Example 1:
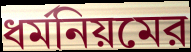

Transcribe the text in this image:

ধর্মনিয়মের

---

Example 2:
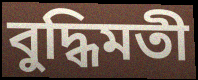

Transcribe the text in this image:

বুদ্ধিমতী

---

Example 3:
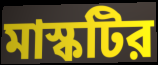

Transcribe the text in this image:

মাস্কটির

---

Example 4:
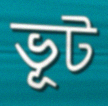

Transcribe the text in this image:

ভূট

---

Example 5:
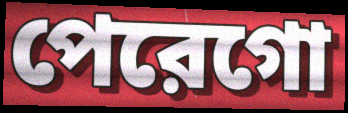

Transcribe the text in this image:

পেরেগো